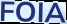
FOIA